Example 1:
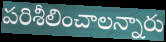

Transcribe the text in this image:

పరిశీలించాలన్నారు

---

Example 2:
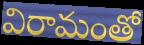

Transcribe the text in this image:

విరామంతో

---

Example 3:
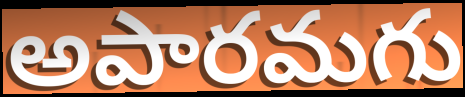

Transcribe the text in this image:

అపారమగు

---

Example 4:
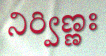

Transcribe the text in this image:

నిర్విణ్ణః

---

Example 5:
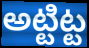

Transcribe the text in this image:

అట్టిట్ట